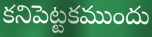
కనిపెట్టకముందు